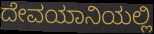
ದೇವಯಾನಿಯಲ್ಲಿ